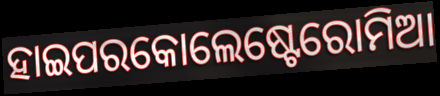
ହାଇପରକୋଲେଷ୍ଟେରୋମିଆ